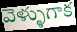
వెళ్ళుగాక